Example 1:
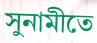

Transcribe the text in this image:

সুনামীতে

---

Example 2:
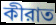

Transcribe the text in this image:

কীরাত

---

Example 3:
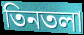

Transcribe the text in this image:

তিনতলা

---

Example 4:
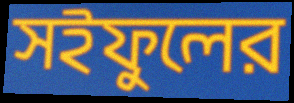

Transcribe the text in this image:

সইফুলের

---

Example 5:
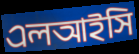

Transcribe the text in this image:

এলআইসি